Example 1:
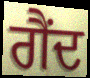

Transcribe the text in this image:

ਗੈਂਦ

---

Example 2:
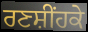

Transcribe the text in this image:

ਰਣਸ਼ੀਂਹਕੇ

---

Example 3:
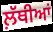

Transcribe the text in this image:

ਲ਼ੱਥੀਆਂ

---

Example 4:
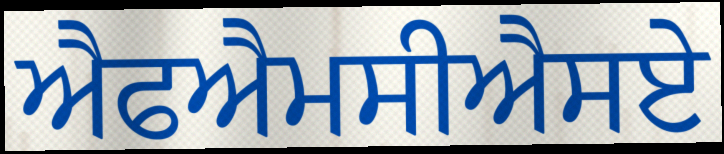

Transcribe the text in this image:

ਐਫਐਮਸੀਐਸਏ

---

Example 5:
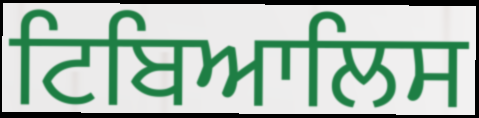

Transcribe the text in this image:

ਟਿਬਿਆਲਿਸ